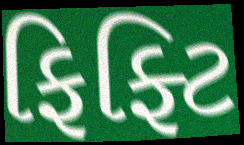
ફિફ્ટિ